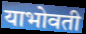
याभोवती